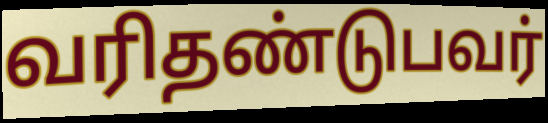
வரிதண்டுபவர்